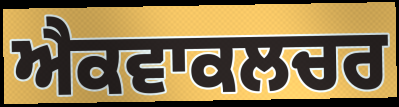
ਐਕਵਾਕਲਚਰ